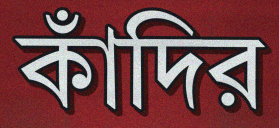
কাঁদির